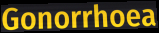
Gonorrhoea